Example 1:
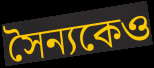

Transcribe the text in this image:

সৈন্যকেও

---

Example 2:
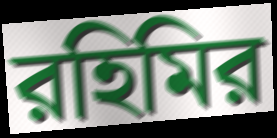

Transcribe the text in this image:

রহিমির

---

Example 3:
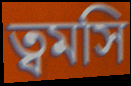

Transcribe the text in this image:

ত্বমসি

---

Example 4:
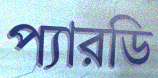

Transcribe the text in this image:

প্যারডি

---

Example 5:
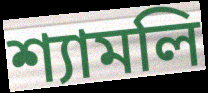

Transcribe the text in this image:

শ্যামলি